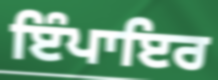
ਇੰਪਾਇਰ